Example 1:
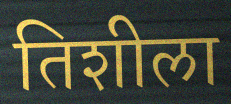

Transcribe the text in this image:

तिशीला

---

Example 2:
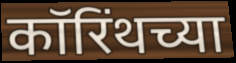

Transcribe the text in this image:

कॉरिंथच्या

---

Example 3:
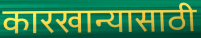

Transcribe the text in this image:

कारखान्यासाठी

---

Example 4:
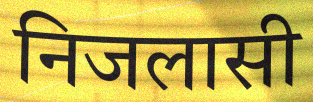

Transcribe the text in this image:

निजलासी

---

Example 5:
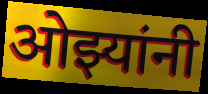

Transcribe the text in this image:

ओझ्यांनी